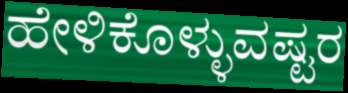
ಹೇಳಿಕೊಳ್ಳುವಷ್ಟರ